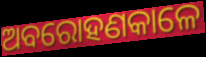
ଅବରୋହଣକାଳେ